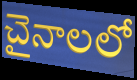
చైనాలలో